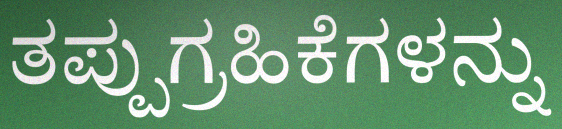
ತಪ್ಪುಗ್ರಹಿಕೆಗಳನ್ನು